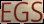
EGS